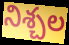
నిశ్చల